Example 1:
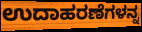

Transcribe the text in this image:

ಉದಾಹರಣೆಗಳನ್ನ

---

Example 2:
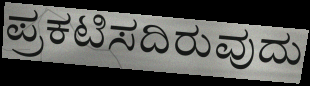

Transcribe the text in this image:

ಪ್ರಕಟಿಸದಿರುವುದು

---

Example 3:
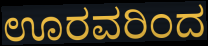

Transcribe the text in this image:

ಊರವರಿಂದ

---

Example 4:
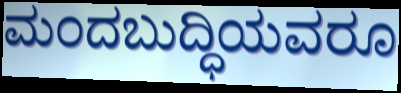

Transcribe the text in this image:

ಮಂದಬುದ್ಧಿಯವರೂ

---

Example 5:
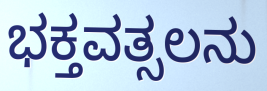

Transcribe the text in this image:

ಭಕ್ತವತ್ಸಲನು